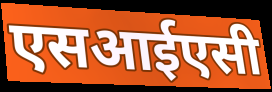
एसआईएसी